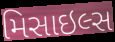
મિસાઇલ્સ